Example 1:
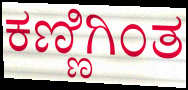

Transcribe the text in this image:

ಕಣ್ಣಿಗಿಂತ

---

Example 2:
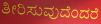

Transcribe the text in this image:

ತೀರಿಸುವುದೆಂದರೆ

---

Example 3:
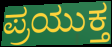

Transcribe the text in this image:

ಪ್ರಯುಕ್ತ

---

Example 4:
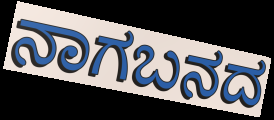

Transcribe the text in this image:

ನಾಗಬನದ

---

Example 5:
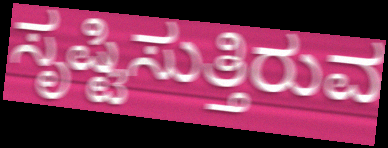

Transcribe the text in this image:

ಸೃಷ್ಟಿಸುತ್ತಿರುವ